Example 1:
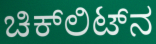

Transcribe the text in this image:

ಚಿಕ್‌ಲಿಟ್‌ನ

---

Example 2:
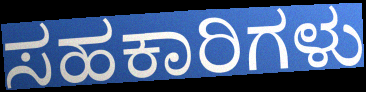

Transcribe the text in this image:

ಸಹಕಾರಿಗಳು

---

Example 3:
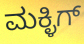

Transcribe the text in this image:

ಮಕ್ಳಿಗ್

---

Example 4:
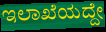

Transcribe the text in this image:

ಇಲಾಖೆಯದ್ದೇ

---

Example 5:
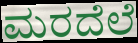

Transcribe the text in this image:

ಮರದೆಲೆ